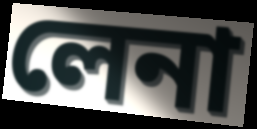
লেনা